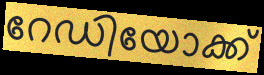
റേഡിയോക്ക്